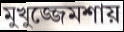
মুখুজ্জেমশায়